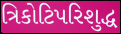
ત્રિકોટિપરિશુદ્ધ